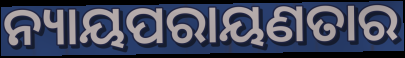
ନ୍ୟାୟପରାୟଣତାର